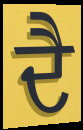
ਦੈ